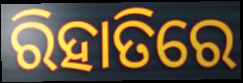
ରିହାତିରେ